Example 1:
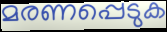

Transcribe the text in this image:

മരണപ്പെടുക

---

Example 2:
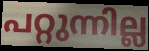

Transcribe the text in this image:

പറ്റുന്നില്ല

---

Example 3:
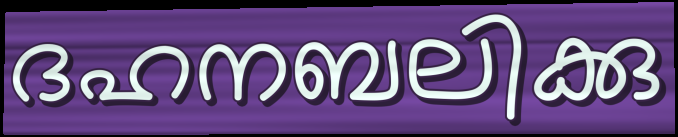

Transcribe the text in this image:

ദഹനബലിക്കു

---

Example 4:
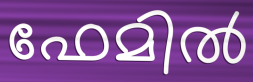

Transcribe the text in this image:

ഫേമിൽ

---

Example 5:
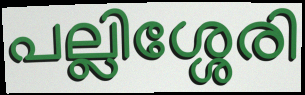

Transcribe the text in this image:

പല്ലിശ്ശേരി